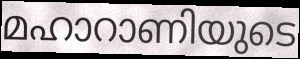
മഹാറാണിയുടെ